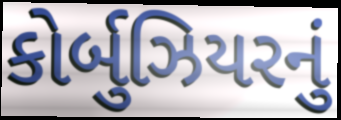
કોર્બુઝિયરનું